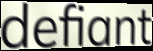
defiant